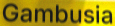
Gambusia